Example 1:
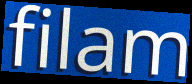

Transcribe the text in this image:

filam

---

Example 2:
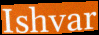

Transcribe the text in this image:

Ishvar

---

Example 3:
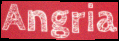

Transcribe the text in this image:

Angria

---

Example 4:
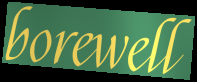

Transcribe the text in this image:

borewell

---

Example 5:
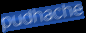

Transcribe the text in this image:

pudhache